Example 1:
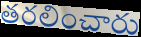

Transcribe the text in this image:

తరలించారు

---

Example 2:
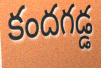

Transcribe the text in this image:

కందగడ్డ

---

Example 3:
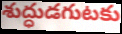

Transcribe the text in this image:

శుద్ధుడగుటకు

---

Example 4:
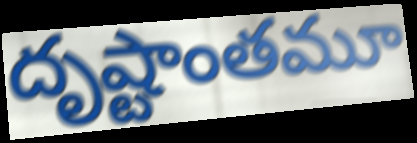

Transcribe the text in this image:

దృష్టాంతమూ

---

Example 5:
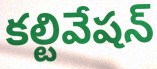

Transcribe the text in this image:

కల్టివేషన్